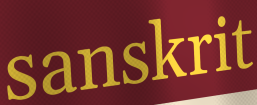
sanskrit